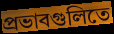
প্রভাবগুলিতে